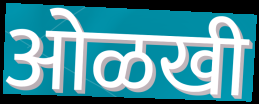
ओळखी